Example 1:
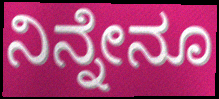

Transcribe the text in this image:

ನಿನ್ನೇನೂ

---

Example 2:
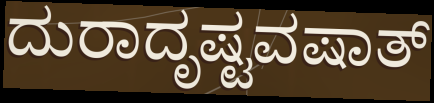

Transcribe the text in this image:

ದುರಾದೃಷ್ಟವಷಾತ್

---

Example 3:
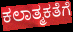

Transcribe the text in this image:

ಕಲಾತ್ಮಕತೆಗೆ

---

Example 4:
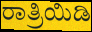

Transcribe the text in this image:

ರಾತ್ರಿಯಿಡಿ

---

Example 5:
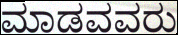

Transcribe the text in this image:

ಮಾಡವವರು